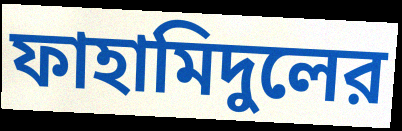
ফাহামিদুলের